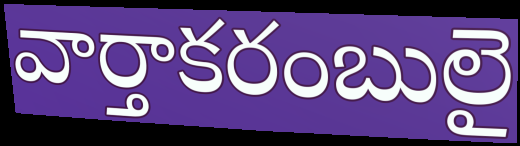
వార్తాకరంబులై